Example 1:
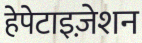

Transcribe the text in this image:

हेपेटाइज़ेशन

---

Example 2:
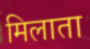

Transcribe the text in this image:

मिलाता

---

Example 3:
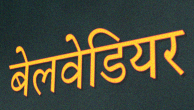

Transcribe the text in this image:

बेलवेडियर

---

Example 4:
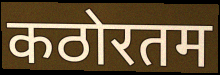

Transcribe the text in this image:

कठोरतम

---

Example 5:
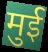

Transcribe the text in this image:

मुई